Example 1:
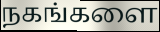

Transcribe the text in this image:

நகங்களை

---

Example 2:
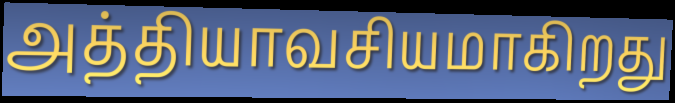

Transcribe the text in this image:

அத்தியாவசியமாகிறது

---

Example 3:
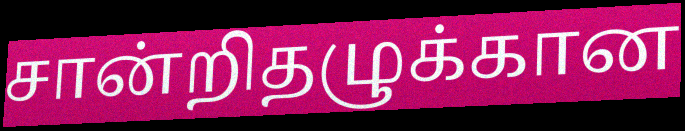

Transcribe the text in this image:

சான்றிதழுக்கான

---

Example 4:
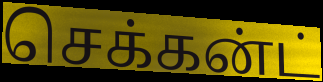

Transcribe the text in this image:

செக்கன்ட்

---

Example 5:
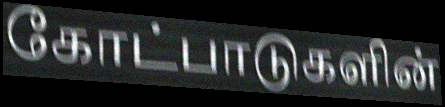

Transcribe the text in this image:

கோட்பாடுகளின்